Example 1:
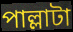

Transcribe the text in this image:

পাল্লাটা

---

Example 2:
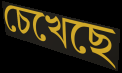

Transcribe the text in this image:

চেখেছে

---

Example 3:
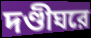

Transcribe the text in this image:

দণ্ডীঘরে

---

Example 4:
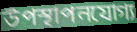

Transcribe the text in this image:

উপস্থাপনযোগ্য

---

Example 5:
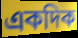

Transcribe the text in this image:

একদিক